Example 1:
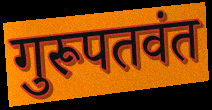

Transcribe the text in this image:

गुरूपतवंत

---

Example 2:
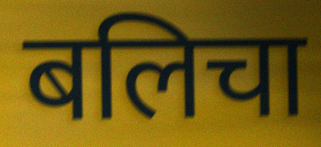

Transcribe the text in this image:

बलिचा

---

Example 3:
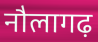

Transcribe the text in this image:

नौलागढ़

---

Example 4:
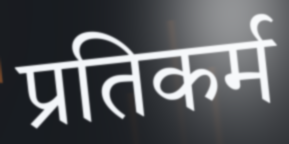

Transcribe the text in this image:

प्रतिकर्म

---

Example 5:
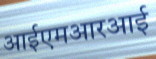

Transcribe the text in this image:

आईएमआरआई